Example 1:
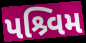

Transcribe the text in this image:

પશ્ર્વિમ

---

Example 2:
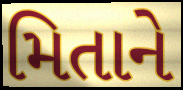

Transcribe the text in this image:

મિતાને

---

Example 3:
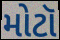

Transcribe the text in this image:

મોટૉ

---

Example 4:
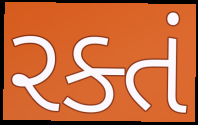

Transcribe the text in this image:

રક્તં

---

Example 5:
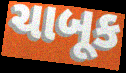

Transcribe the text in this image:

ચાબૂક